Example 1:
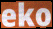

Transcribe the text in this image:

eko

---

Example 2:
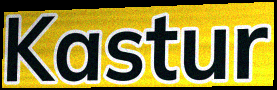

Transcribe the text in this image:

Kastur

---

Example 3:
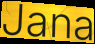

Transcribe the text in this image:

Jana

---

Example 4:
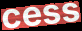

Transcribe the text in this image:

cess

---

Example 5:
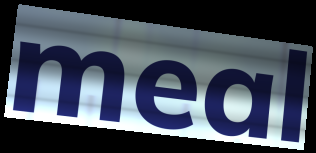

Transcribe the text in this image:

meal